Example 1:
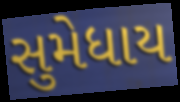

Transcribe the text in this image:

સુમેધાય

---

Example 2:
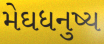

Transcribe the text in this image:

મેઘધનુષ્ય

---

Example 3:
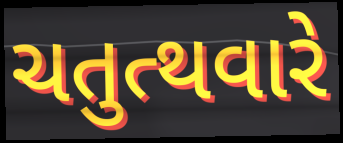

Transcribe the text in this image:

ચતુત્થવારે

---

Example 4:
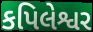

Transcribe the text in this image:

કપિલેશ્વર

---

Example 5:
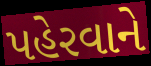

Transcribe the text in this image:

પહેરવાને